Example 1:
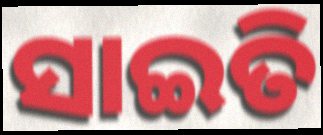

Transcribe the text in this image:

ସାଇତି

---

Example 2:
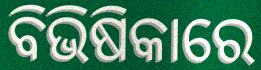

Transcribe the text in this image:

ବିଭିଷିକାରେ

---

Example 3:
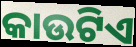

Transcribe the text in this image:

କାଉଟିଏ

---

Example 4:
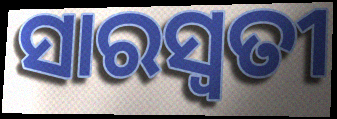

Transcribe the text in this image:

ସାରସ୍ୱତୀ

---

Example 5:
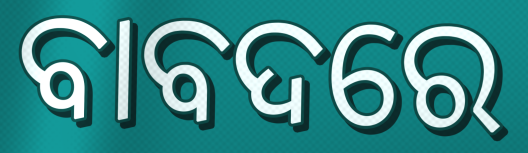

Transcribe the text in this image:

ବାବଦରେ